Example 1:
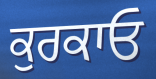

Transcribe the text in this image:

ਕੁਰਕਾਓ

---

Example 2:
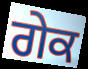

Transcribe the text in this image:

ਗੇਕ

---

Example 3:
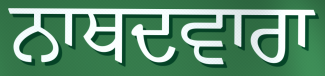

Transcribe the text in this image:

ਨਾਥਦਵਾਰਾ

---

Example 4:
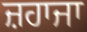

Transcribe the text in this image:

ਜ਼ਹਾਜਾ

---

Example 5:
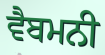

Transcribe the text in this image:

ਵੈਬਮਨੀ